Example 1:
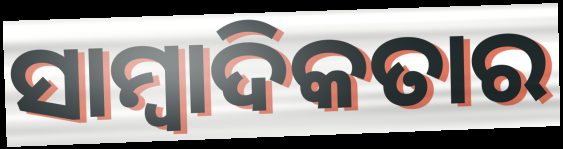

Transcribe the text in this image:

ସାମ୍ୱାଦିକତାର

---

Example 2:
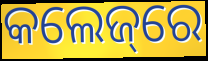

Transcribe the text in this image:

କଲେଜ୍‌ରେ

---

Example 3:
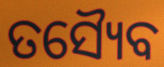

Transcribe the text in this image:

ତସ୍ୟୈବ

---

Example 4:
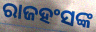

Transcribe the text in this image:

ରାଜହଂସଙ୍କ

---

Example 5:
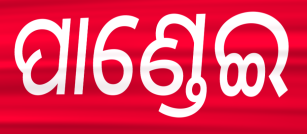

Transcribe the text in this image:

ପାଣ୍ଡେଇ